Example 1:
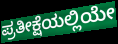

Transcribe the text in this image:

ಪ್ರತೀಕ್ಷೆಯಲ್ಲಿಯೇ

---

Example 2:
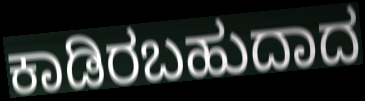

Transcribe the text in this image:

ಕಾಡಿರಬಹುದಾದ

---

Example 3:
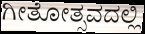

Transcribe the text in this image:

ಗೀತೋತ್ಸವದಲ್ಲಿ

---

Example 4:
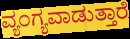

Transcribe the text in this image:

ವ್ಯಂಗ್ಯವಾಡುತ್ತಾರೆ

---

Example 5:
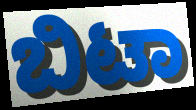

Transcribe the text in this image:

ಬಿಟಾ